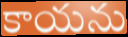
కాయను